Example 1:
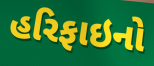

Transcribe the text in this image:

હરિફાઇનો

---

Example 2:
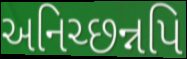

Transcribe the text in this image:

અનિચ્છન્નપિ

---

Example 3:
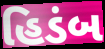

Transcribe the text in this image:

હિડંબ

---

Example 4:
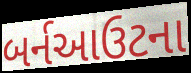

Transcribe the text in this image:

બર્નઆઉટના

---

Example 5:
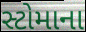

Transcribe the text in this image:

સ્ટોમાના